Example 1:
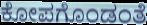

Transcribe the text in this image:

ಕೋಪಗೊಂಡಂತೆ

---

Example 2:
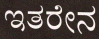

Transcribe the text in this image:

ಇತರೇನ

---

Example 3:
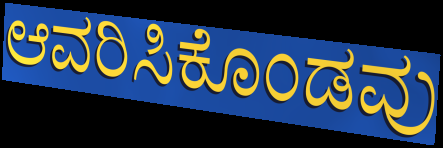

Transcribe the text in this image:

ಆವರಿಸಿಕೊಂಡವು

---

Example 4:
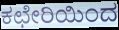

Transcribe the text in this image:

ಕಛೇರಿಯಿಂದ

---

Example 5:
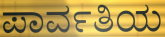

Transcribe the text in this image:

ಪಾರ್ವತಿಯ